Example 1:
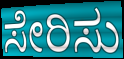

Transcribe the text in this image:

ಸೇರಿಸು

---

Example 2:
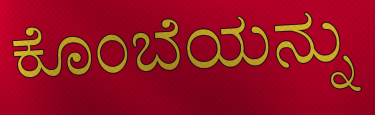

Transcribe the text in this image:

ಕೊಂಬೆಯನ್ನು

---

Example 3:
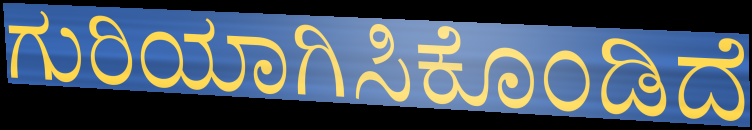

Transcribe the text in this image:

ಗುರಿಯಾಗಿಸಿಕೊಂಡಿದೆ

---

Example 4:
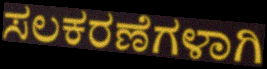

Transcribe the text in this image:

ಸಲಕರಣೆಗಳಾಗಿ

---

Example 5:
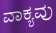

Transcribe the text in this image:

ವಾಕ್ಯವು